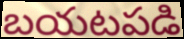
బయటపడి